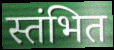
स्तंभित